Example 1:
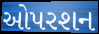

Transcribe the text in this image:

ઓપરશન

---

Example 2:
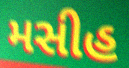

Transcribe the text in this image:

મસીહ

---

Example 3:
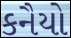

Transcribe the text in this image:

કનૈયો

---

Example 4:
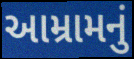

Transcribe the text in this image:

આમ્રામનું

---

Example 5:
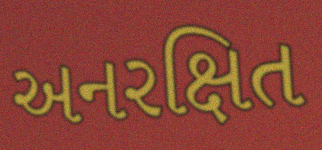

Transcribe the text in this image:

અનરક્ષિત